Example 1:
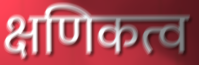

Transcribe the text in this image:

क्षणिकत्व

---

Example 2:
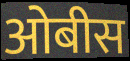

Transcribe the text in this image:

ओबीस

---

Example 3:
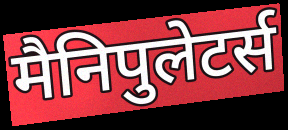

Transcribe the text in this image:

मैनिपुलेटर्स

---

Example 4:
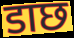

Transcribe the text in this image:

डाछ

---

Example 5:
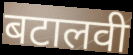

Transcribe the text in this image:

बटालवी